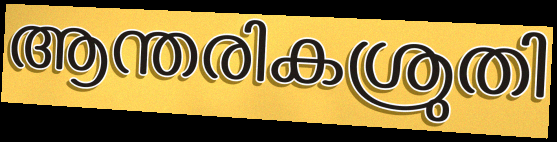
ആന്തരികശ്രുതി